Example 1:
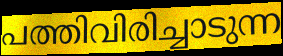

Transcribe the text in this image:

പത്തിവിരിച്ചാടുന്ന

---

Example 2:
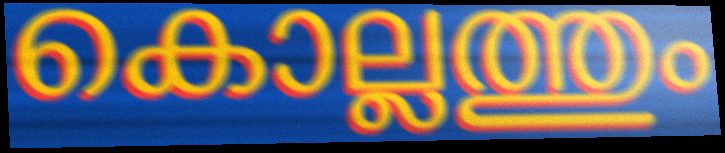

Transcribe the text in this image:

കൊല്ലത്തും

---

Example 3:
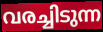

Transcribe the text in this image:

വരച്ചിടുന്ന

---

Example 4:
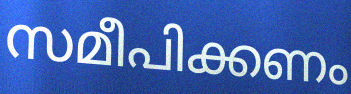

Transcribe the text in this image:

സമീപിക്കണം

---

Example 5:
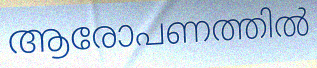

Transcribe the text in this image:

ആരോപണത്തിൽ